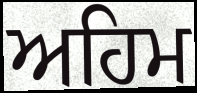
ਅਹਿਮ